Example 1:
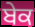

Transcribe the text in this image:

ਬੇਕ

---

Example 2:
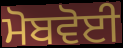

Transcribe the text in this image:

ਮੋਬਵੋਈ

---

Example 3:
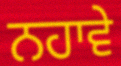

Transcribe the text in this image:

ਨਹਾਵੇ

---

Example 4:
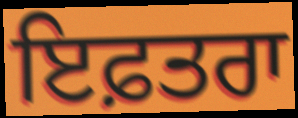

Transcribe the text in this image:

ਇਫ਼ਤਰਾ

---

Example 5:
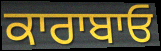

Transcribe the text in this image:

ਕਾਰਾਬਾਓ